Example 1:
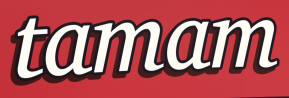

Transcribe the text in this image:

tamam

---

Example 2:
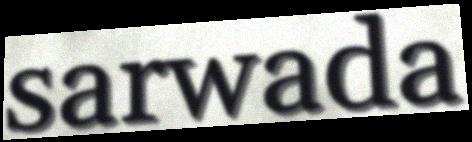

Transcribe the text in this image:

sarwada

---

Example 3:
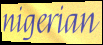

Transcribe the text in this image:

nigerian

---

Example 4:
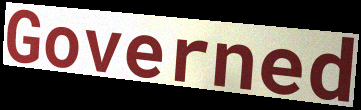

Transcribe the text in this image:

Governed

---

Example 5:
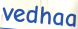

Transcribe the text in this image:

vedhaa